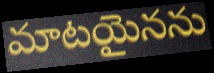
మాటయైనను